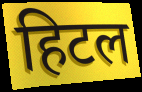
हिटल